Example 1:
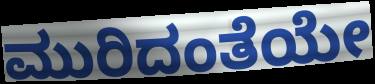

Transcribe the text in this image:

ಮುರಿದಂತೆಯೇ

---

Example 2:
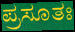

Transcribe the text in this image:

ಪ್ರಸೂತಃ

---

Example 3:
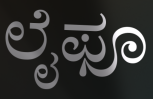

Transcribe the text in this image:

ಲೈಫೂ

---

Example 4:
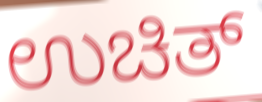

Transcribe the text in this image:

ಉಚಿತ್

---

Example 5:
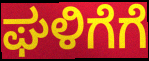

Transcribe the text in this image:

ಘಳಿಗೆಗೆ